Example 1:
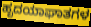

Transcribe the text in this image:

ಹೃದಯಾಘಾತಗಳ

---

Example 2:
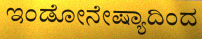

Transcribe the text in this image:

ಇಂಡೋನೇಷ್ಯಾದಿಂದ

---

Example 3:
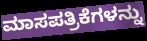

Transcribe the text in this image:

ಮಾಸಪತ್ರಿಕೆಗಳನ್ನು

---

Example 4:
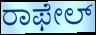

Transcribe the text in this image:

ರಾಫೇಲ್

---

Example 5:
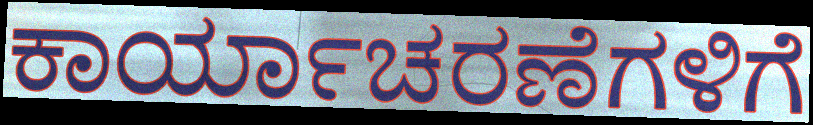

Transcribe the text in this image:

ಕಾರ್ಯಾಚರಣೆಗಳಿಗೆ